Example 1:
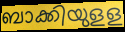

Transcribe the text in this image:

ബാക്കിയുളള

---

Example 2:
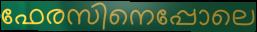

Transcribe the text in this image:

ഫേരസിനെപ്പോലെ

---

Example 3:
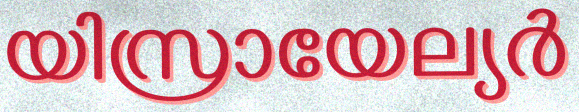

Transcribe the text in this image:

യിസ്രായേല്യർ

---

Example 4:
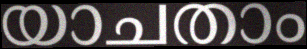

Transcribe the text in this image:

യാചതാം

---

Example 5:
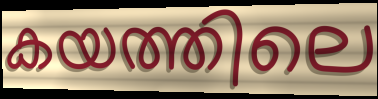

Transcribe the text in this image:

കയത്തിലെ